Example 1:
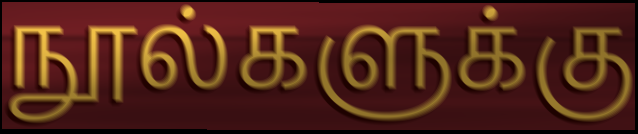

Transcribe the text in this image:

நூல்களுக்கு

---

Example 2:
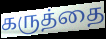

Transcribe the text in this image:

கருத்தை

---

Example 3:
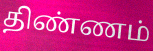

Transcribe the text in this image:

திண்ணம்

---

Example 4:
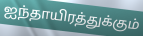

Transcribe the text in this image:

ஐந்தாயிரத்துக்கும்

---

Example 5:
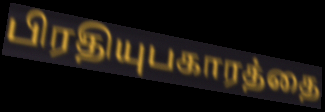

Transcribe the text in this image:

பிரதியுபகாரத்தை